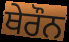
ਥੇਰੌਨ